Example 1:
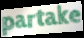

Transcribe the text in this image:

partake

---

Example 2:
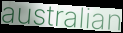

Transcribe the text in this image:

australian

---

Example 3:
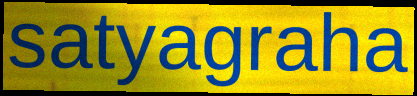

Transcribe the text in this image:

satyagraha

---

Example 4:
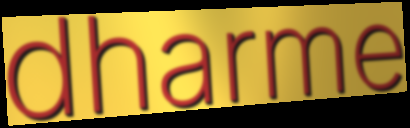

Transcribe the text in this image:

dharme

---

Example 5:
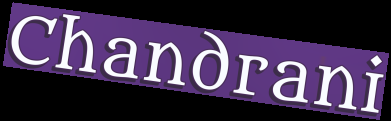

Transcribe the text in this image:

Chandrani